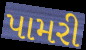
પામરી